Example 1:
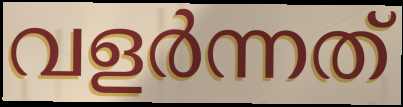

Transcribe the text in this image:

വളർന്നത്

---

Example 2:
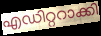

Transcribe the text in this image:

എഡിറ്ററാക്കി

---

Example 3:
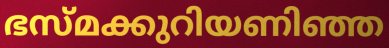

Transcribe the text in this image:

ഭസ്മക്കുറിയണിഞ്ഞ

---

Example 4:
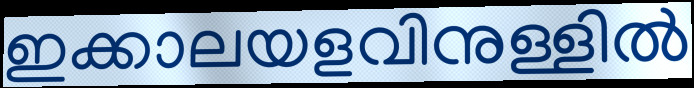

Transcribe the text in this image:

ഇക്കാലയളവിനുള്ളിൽ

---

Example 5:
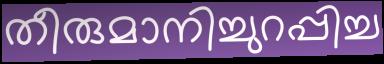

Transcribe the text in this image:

തീരുമാനിച്ചുറപ്പിച്ച